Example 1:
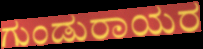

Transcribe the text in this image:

ಗುಂಡುರಾಯರ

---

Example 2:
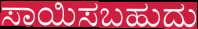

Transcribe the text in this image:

ಸಾಯಿಸಬಹುದು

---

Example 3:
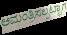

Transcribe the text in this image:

ಆಮಂತ್ರಿಸಲ್ಪಟ್ಟಾಗ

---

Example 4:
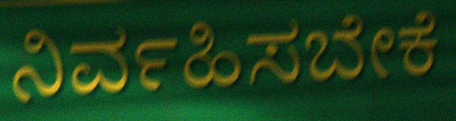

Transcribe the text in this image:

ನಿರ್ವಹಿಸಬೇಕೆ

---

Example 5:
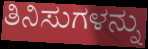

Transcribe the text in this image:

ತಿನಿಸುಗಳನ್ನು